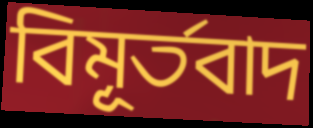
বিমূর্তবাদ